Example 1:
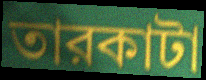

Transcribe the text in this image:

তারকাটা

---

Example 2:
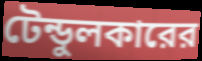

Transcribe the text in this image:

টেন্ডুলকারের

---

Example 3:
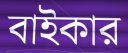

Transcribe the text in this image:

বাইকার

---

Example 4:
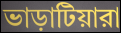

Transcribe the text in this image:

ভাড়াটিয়ারা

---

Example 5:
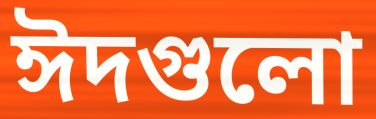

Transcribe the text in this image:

ঈদগুলো